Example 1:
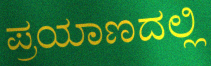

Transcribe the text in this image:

ಪ್ರಯಾಣದಲ್ಲಿ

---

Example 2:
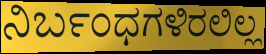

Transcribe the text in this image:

ನಿರ್ಬಂಧಗಳಿರಲಿಲ್ಲ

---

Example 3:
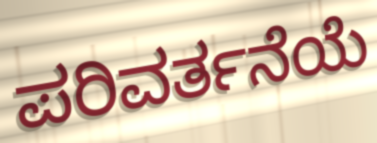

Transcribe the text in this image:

ಪರಿವರ್ತನೆಯೆ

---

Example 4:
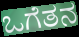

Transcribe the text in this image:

ಒಗೆತನ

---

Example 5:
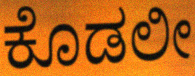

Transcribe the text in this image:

ಕೊಡಲೀ